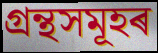
গ্ৰন্থসমূহৰ